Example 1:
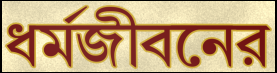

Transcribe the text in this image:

ধর্মজীবনের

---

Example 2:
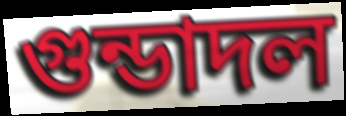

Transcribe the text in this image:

গুন্ডাদল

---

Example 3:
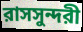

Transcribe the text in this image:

রাসসুন্দরী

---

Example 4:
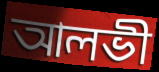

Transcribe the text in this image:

আলভী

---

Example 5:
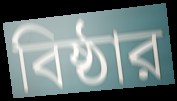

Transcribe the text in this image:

বিষ্ঠার